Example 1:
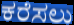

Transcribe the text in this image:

ಕರೆಸಲು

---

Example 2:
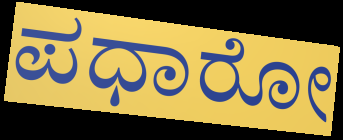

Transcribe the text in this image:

ಪಧಾರೋ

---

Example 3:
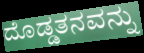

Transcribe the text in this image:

ದೊಡ್ಡತನವನ್ನು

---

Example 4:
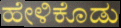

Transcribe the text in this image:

ಹೇಳಿಕೊಡು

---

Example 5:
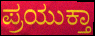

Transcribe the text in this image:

ಪ್ರಯುಕ್ತಾ